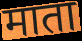
माता